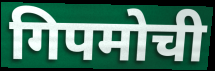
गिपमोची